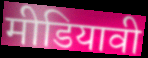
मीडियावी